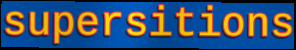
supersitions